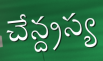
చేన్ద్రస్య